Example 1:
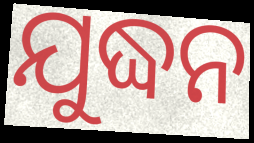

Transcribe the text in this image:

ଯୁଦ୍ଧନ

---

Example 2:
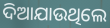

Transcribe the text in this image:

ଦିଆଯାଉଥିଲେ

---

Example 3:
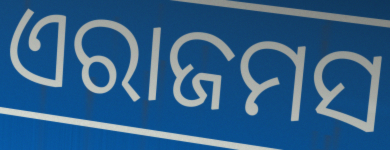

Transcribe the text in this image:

ଏରାଜମସ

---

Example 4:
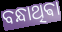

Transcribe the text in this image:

ବନ୍ଧାଥିଵା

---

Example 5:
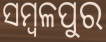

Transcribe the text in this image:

ସମ୍ବଳପୁର